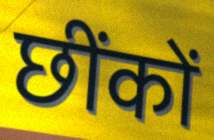
छींकों